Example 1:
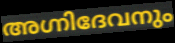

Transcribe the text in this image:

അഗ്നിദേവനും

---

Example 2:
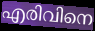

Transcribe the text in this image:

എരിവിനെ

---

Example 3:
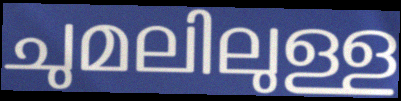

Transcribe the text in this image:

ചുമലിലുള്ള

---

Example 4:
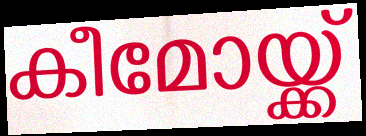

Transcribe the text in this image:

കീമോയ്ക്ക്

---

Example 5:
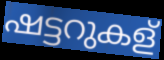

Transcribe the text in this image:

ഷട്ടറുകള്